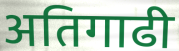
अतिगाढी